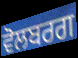
ਵੋਲਬਰਗ